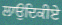
ਲਾਉਦਿਕੀਏ